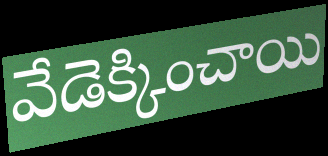
వేడెక్కించాయి